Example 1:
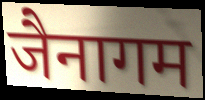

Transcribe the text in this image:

जैनागम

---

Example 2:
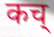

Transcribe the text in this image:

कच्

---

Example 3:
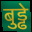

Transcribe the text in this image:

बुड्ढे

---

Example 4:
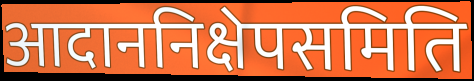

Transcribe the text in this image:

आदाननिक्षेपसमिति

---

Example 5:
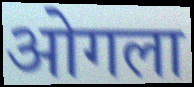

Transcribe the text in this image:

ओगला